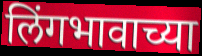
लिंगभावाच्या